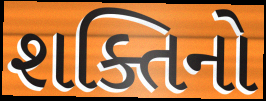
શક્તિનો